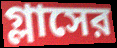
গ্লাসের